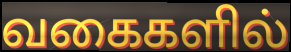
வகைகளில்